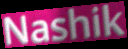
Nashik